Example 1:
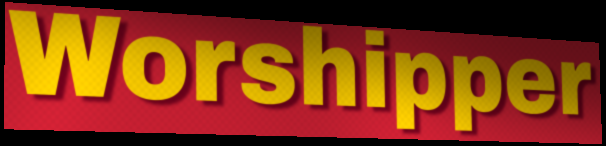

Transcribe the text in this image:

Worshipper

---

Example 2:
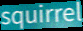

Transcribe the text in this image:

squirrel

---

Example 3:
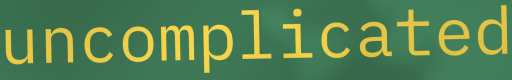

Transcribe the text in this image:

uncomplicated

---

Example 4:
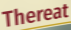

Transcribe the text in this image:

Thereat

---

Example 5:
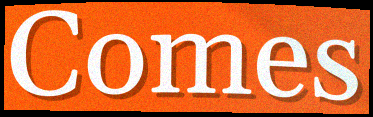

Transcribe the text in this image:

Comes